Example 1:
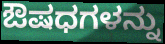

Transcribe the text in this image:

ಔಷಧಗಳನ್ನು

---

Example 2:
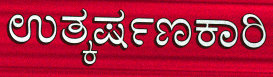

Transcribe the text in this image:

ಉತ್ಕರ್ಷಣಕಾರಿ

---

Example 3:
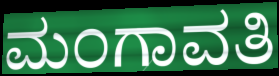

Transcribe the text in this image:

ಮಂಗಾವತಿ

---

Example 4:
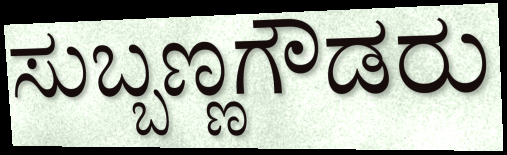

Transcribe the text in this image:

ಸುಬ್ಬಣ್ಣಗೌಡರು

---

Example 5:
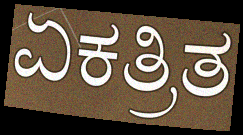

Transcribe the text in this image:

ಏಕತ್ರಿತ